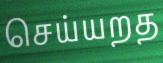
செய்யறத